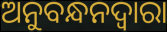
ଅନୁବନ୍ଧନଦ୍ୱାରା